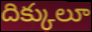
దిక్కులూ